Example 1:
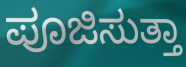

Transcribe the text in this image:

ಪೂಜಿಸುತ್ತಾ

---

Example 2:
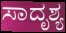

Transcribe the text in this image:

ಸಾದೃಶ್ಯ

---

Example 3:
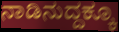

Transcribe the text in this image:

ನಾಡಿನುದ್ದಕ್ಕೂ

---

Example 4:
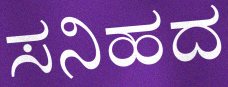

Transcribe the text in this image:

ಸನಿಹದ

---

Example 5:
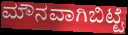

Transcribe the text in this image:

ಮೌನವಾಗಿಬಿಟ್ಟೆ